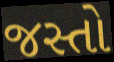
જસ્તો